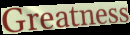
Greatness